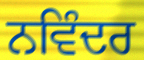
ਨਵਿੰਦਰ